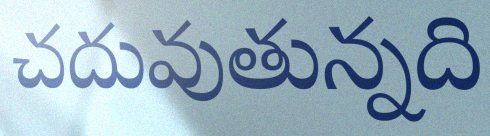
చదువుతున్నది